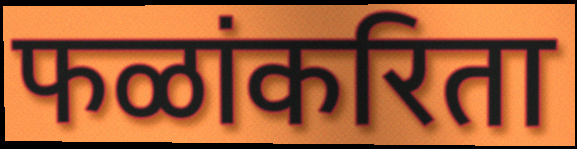
फळांकरिता